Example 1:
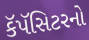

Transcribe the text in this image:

કૅપૅસિટરનો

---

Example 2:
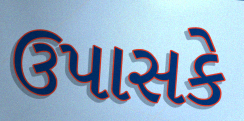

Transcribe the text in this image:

ઉપાસકે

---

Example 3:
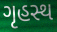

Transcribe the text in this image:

ગૃહસ્થ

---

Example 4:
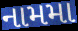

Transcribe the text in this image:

નામમા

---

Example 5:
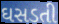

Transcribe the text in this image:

ઘસડતી